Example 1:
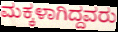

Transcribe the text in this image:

ಮಕ್ಕಳಾಗಿದ್ದವರು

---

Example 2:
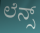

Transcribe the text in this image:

ಲೆನ್ಸ್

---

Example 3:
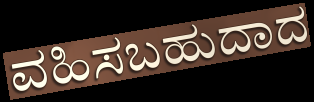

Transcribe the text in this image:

ವಹಿಸಬಹುದಾದ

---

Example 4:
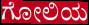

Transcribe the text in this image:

ಗೋಲಿಯ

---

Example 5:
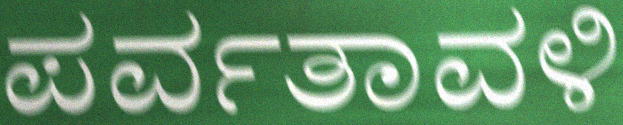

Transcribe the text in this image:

ಪರ್ವತಾವಳಿ